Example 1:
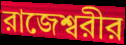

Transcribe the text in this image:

রাজেশ্বরীর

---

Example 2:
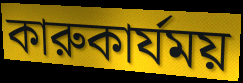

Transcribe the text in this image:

কারুকার্যময়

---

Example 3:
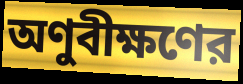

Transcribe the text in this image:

অণুবীক্ষণের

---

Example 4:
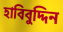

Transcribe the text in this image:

হাবিবুদ্দিন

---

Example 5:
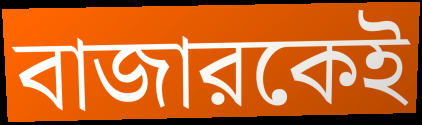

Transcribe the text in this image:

বাজারকেই